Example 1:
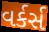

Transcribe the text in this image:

વર્કર્સ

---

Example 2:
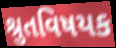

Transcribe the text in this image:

શ્રુતવિષયક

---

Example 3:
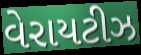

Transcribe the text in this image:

વેરાયટીઝ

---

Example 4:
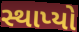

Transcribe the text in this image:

સ્થાપ્યો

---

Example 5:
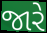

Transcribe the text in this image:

જારે